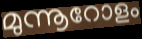
മുന്നൂറോളം